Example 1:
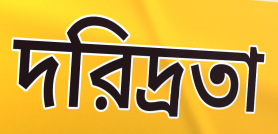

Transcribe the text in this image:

দরিদ্রতা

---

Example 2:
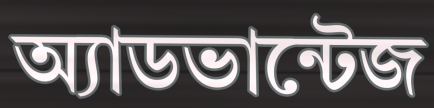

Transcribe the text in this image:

অ্যাডভান্টেজ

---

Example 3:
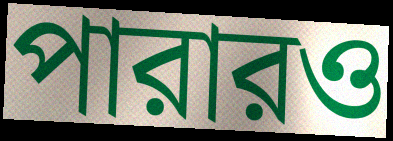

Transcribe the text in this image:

পারারও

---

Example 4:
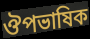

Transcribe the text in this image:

ঔপভাষিক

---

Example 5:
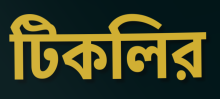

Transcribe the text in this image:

টিকলির